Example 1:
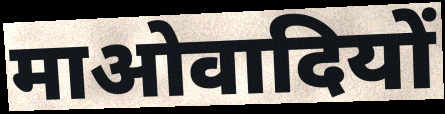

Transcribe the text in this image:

माओवादियों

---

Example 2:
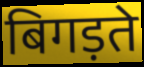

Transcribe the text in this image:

बिगड़ते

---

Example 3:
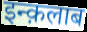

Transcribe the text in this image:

इन्क़लाब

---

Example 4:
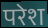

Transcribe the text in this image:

परेश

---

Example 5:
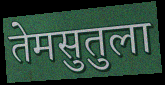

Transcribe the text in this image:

तेमसुतुला